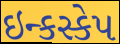
ઇન્કસ્કેપ